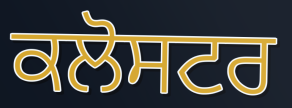
ਕਲੋਸਟਰ